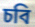
চবি